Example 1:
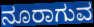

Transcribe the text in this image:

ನೂರಾಗುವ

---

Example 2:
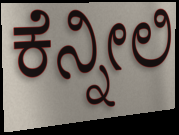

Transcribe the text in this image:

ಕೆನ್ನೀಲಿ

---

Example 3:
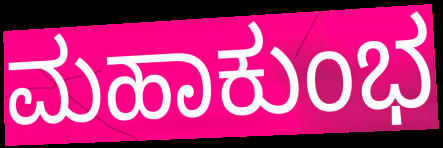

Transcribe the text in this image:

ಮಹಾಕುಂಭ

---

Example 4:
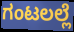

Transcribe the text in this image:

ಗಂಟಲಲ್ಲೆ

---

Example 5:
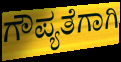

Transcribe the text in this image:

ಗೌಪ್ಯತೆಗಾಗಿ